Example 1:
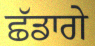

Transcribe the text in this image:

ਛੱਡਾਗੇ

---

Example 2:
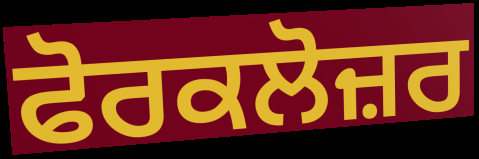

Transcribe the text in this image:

ਫੋਰਕਲੋਜ਼ਰ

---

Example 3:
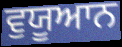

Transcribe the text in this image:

ਵੁਯੂਆਨ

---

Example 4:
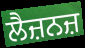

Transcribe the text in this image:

ਲੈਜ਼ਨਜ਼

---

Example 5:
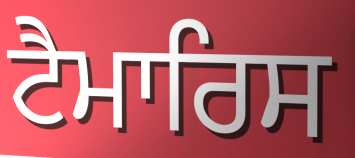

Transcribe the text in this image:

ਟੈਮਾਰਿਸ